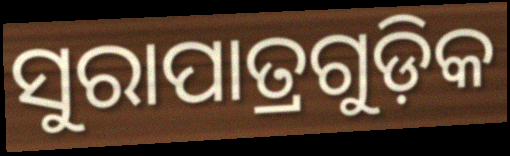
ସୁରାପାତ୍ରଗୁଡ଼ିକ